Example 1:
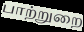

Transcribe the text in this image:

பாற்றுறை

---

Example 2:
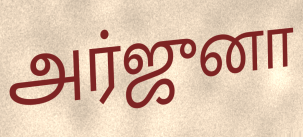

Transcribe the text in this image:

அர்ஜுனா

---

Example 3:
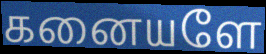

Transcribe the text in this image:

கனையளே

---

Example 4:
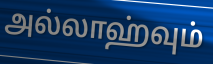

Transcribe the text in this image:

அல்லாஹ்வும்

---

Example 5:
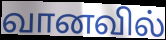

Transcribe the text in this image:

வானவில்